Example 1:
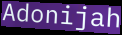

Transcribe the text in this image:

Adonijah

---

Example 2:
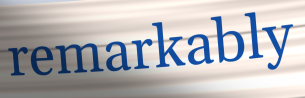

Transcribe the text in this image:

remarkably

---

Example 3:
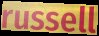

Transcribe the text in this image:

russell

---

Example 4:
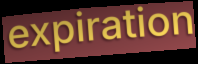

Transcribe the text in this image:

expiration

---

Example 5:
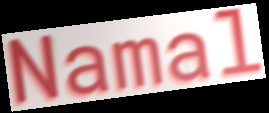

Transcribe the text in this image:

Namal